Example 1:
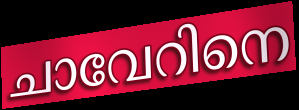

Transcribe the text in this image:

ചാവേറിനെ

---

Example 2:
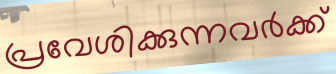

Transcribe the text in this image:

പ്രവേശിക്കുന്നവർക്ക്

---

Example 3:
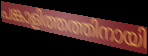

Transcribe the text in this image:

പങ്കാളിത്തത്തിനായി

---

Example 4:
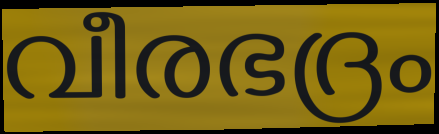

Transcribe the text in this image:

വീരഭദ്രം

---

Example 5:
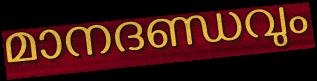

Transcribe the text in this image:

മാനദണ്ഡവും